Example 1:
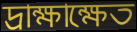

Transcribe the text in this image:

দ্রাক্ষাক্ষেত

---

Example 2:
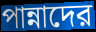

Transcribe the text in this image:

পান্নাদের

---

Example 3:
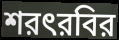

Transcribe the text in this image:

শরৎরবির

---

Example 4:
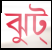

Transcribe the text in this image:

ঝুট্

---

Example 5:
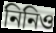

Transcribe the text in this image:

নিনিও